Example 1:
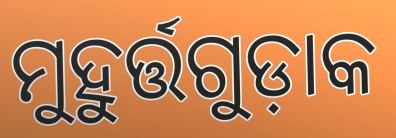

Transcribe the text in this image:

ମୁହୁର୍ତ୍ତଗୁଡ଼ାକ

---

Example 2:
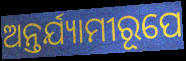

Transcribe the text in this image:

ଅନ୍ତର୍ଯ୍ୟାମୀରୂପେ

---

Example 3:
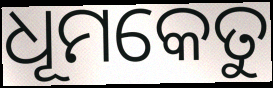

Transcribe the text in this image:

ଧୂମକେତୁ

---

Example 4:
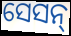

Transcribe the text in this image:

ସେସନ୍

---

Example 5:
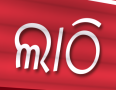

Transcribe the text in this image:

ଲାଠି